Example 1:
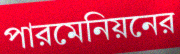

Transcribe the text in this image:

পারমেনিয়নের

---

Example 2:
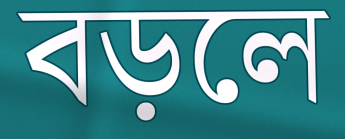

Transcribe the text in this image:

বড়লে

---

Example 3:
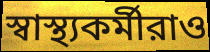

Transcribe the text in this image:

স্বাস্থ্যকর্মীরাও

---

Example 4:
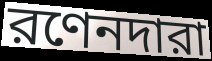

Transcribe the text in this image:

রণেনদারা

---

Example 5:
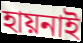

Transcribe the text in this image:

হায়নাই